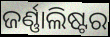
ଜର୍ଣ୍ଣାଲିଷ୍ଟର